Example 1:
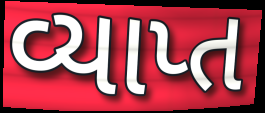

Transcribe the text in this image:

વ્યાપ્ત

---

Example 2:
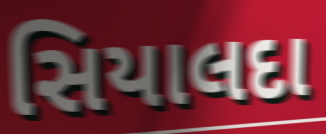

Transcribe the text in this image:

સિયાલદા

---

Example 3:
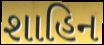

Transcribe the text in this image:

શાહિન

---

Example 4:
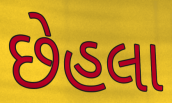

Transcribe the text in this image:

છેહલા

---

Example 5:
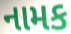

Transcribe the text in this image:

નામક